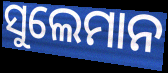
ସୁଲେମାନ